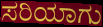
ಸರಿಯಾಗು